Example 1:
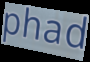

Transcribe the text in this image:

phad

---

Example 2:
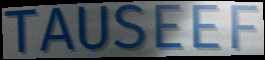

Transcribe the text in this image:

TAUSEEF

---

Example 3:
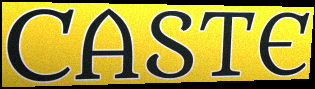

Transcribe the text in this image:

CASTE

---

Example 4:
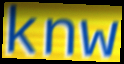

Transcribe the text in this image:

knw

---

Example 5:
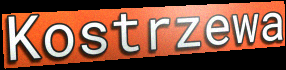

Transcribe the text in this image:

Kostrzewa